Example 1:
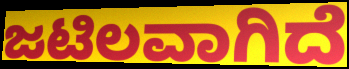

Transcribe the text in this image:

ಜಟಿಲವಾಗಿದೆ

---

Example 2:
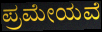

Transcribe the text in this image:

ಪ್ರಮೇಯವೆ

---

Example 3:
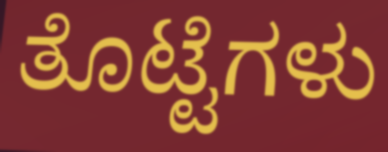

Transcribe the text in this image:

ತೊಟ್ಟೆಗಳು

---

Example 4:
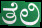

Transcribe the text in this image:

ತೆಲಿ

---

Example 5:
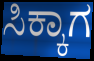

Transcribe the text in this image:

ಸಿಕ್ಕಾಗ